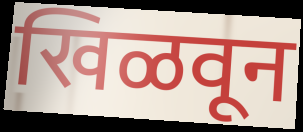
खिळवून